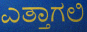
ಎತ್ತಾಗಲಿ